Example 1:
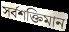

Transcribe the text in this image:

সৰ্বশক্তিমান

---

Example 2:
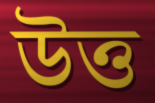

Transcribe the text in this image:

উত্ত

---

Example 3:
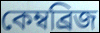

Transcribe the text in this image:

কেম্বব্ৰিজ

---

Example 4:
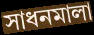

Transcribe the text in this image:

সাধনমালা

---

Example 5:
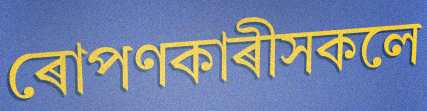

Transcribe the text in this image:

ৰোপণকাৰীসকলে